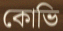
কোভি